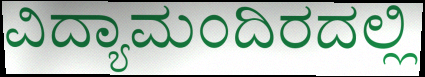
ವಿದ್ಯಾಮಂದಿರದಲ್ಲಿ